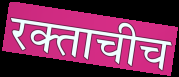
रक्ताचीच